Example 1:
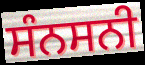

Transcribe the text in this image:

ਸੰਨਸਨੀ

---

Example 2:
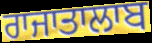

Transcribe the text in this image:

ਰਾਜਾਤਾਲਾਬ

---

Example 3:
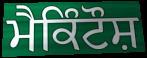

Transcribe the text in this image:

ਮੈਕਿੰਟੌਸ਼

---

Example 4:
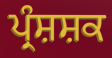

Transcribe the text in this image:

ਪ੍ਰੰਸ਼ਸ਼ਕ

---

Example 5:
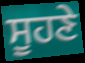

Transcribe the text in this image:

ਸੂਹਣੇ